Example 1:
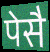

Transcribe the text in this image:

पेसै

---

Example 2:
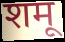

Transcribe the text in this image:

शमू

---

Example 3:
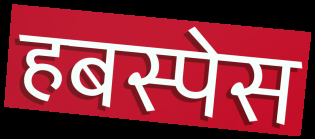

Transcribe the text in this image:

हबस्पेस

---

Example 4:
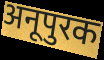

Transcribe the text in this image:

अनूपुरक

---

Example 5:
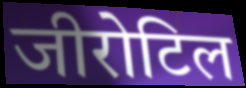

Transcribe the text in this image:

जीरोटिल